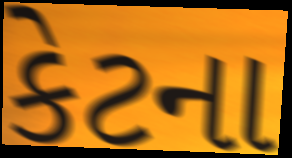
કેટના